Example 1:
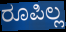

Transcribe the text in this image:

ರೂಪಿಲ್ಲ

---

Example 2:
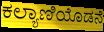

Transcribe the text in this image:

ಕಲ್ಯಾಣಿಯೊಡನೆ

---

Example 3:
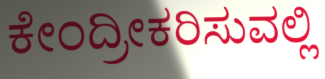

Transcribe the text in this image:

ಕೇಂದ್ರೀಕರಿಸುವಲ್ಲಿ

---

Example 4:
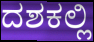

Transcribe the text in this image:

ದಶಕಲ್ಲಿ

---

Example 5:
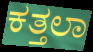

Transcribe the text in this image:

ಕತ್ತಲಾ